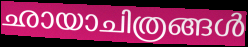
ഛായാചിത്രങ്ങൾ